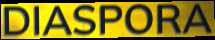
DIASPORA